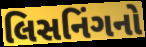
લિસનિંગનો